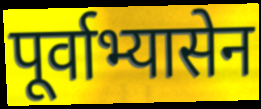
पूर्वाभ्यासेन